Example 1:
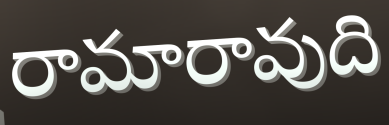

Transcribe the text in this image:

రామారావుది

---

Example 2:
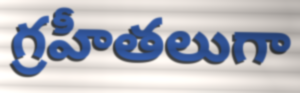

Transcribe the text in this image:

గ్రహీతలుగా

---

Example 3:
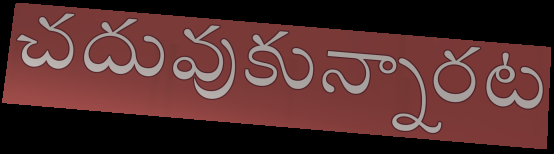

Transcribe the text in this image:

చదువుకున్నారట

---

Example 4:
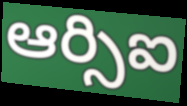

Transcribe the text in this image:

ఆర్సిఐ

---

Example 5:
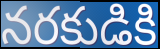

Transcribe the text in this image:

నరకుడికి